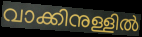
വാക്കിനുള്ളിൽ